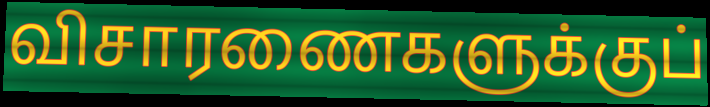
விசாரணைகளுக்குப்